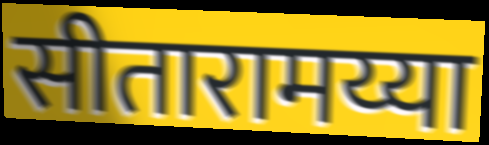
सीतारामय्या